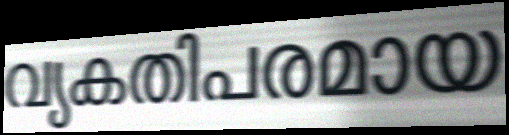
വ്യകതിപരമായ